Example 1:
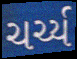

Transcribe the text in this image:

ચર્ચ્ય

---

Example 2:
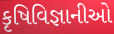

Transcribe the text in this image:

કૃષિવિજ્ઞાનીઓ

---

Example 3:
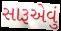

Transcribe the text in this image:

સારૂએવું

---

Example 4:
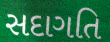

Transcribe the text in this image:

સદાગતિ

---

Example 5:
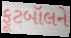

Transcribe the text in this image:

ફૂટબૉલને